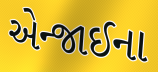
એન્જાઈના